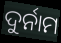
ଦୁର୍ନାମ